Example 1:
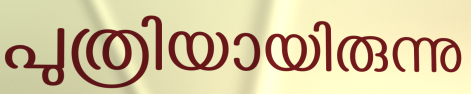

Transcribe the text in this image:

പുത്രിയായിരുന്നു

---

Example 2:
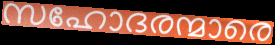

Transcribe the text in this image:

സഹോദരന്മാരെ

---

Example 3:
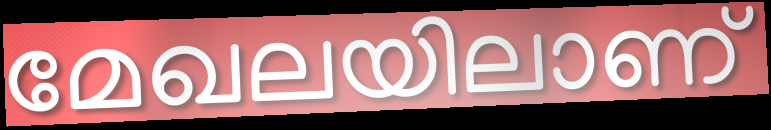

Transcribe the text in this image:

മേഖലയിലാണ്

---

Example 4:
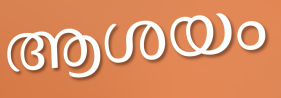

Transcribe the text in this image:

ആശയം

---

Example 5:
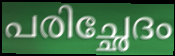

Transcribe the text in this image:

പരിച്ഛേദം